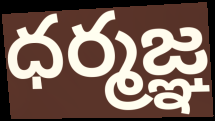
ధర్మజ్ఞ